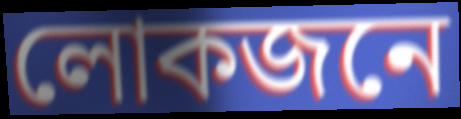
লোকজনে